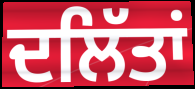
ਦਲਿੱਤਾਂ